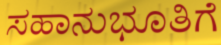
ಸಹಾನುಭೂತಿಗೆ